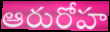
ఆరురోహ